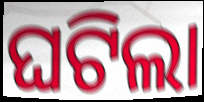
ଘଟିଲା